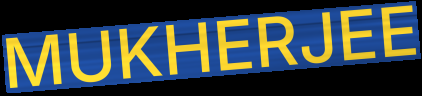
MUKHERJEE